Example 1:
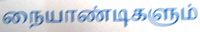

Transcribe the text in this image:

நையாண்டிகளும்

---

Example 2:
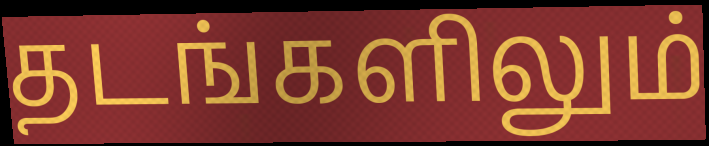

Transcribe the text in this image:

தடங்களிலும்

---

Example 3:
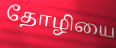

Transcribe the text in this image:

தோழியை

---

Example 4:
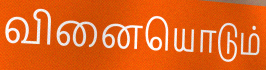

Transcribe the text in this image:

வினையொடும்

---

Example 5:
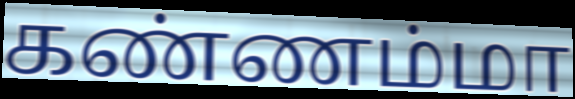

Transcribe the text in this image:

கண்ணம்மா